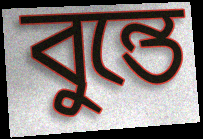
বুন্তে